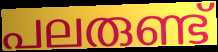
പലരുണ്ട്